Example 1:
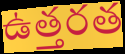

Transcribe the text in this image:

ఉత్తరత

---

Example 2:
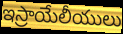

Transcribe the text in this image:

ఇస్రాయేలీయులు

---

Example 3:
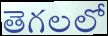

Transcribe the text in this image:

తెగలలో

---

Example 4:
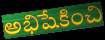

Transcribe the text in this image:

అభిషేకించి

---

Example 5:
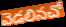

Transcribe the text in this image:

వెడలినచో